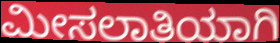
ಮೀಸಲಾತಿಯಾಗಿ